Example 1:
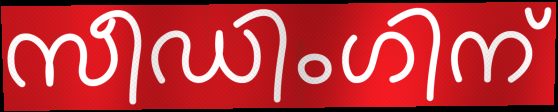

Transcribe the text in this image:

സീഡിംഗിന്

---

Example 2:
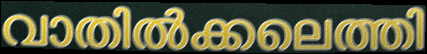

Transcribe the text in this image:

വാതിൽക്കലെത്തി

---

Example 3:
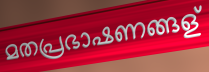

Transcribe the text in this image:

മതപ്രഭാഷണങ്ങള്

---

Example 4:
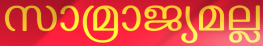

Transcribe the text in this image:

സാമ്രാജ്യമല്ല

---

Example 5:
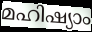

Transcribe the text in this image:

മഹിഷ്യാം